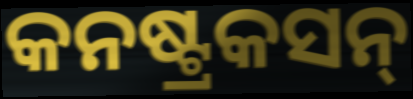
କନଷ୍ଟ୍ରକସନ୍